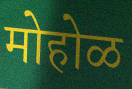
मोहोळ